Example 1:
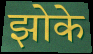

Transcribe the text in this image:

झोके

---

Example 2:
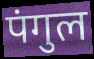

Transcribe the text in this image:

पंगुल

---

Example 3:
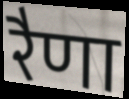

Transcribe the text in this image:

रैणा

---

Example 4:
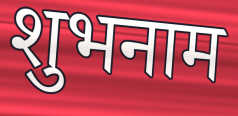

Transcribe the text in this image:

शुभनाम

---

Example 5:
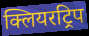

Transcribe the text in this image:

क्लियरट्रिप